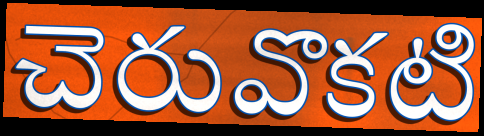
చెరువొకటి